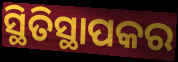
ସ୍ଥିତିସ୍ଥାପକର